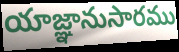
యాజ్ఞానుసారము